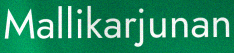
Mallikarjunan